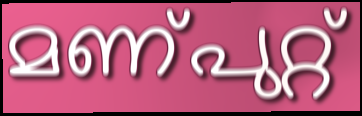
മണ്പുറ്റ്